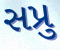
સપ્રુ